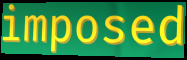
imposed